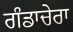
ਗੰਡਾਚੇਰਾ